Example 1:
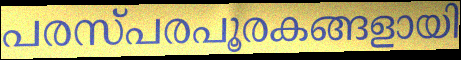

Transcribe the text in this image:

പരസ്പരപൂരകങ്ങളായി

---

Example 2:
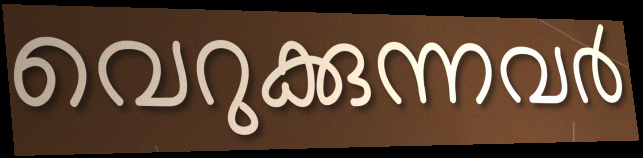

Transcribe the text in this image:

വെറുക്കുന്നവർ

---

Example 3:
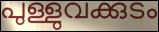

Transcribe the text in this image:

പുള്ളുവക്കുടം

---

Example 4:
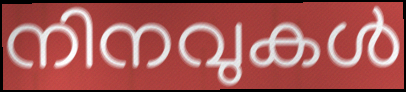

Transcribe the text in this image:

നിനവുകൾ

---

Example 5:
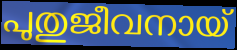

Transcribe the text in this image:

പുതുജീവനായ്